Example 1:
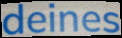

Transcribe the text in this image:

deines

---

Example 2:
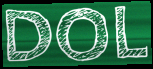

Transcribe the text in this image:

DOL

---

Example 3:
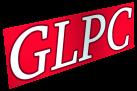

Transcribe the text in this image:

GLPC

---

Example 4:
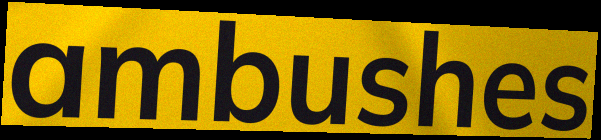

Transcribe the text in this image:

ambushes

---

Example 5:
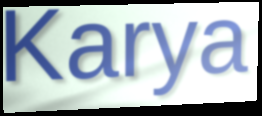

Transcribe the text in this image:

Karya